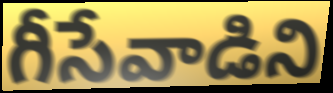
గీసేవాడిని